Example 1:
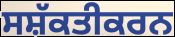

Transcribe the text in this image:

ਸਸ਼ੱਕਤੀਕਰਨ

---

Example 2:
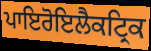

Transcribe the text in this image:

ਪਾਇਰੋਇਲੈਕਟ੍ਰਿਕ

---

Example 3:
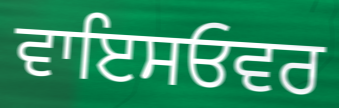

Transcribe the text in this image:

ਵਾਇਸਓਵਰ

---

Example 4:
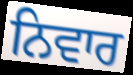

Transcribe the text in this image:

ਨਿਵਾਰ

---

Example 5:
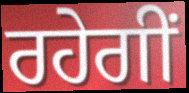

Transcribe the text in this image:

ਰਹੇਗੀਂ